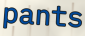
pants